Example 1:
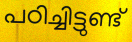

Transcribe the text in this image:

പഠിച്ചിട്ടുണ്ട്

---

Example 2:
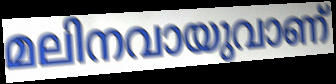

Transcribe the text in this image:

മലിനവായുവാണ്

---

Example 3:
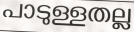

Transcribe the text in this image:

പാടുള്ളതല്ല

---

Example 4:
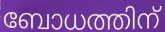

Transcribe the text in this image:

ബോധത്തിന്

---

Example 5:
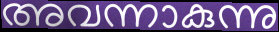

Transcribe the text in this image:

അവന്നാകുന്നു